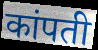
कांपती